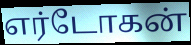
எர்டோகன்